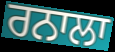
ਰਨਾਲਾ